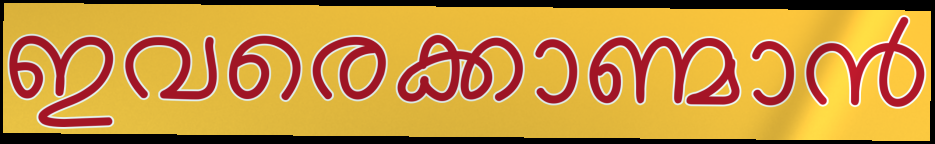
ഇവരെക്കാണ്മാൻ